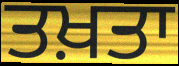
ਤਖ਼ਤਾ